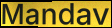
Mandav